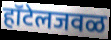
हॉटेलजवळ